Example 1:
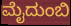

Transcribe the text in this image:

ಮೈದುಂಬಿ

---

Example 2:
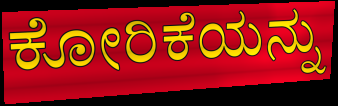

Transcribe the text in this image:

ಕೋರಿಕೆಯನ್ನು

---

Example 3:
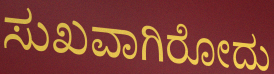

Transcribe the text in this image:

ಸುಖವಾಗಿರೋದು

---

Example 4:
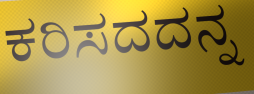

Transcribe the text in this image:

ಕರಿಸದದನ್ನ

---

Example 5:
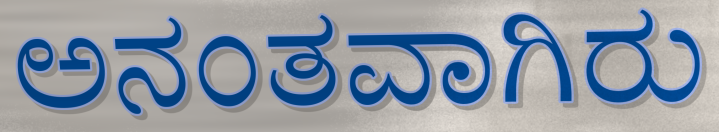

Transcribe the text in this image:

ಅನಂತವಾಗಿರು